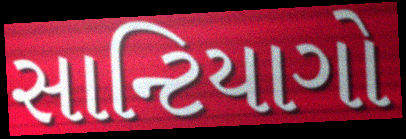
સાન્ટિયાગો